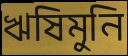
ঋষিমুনি